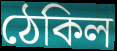
ঠেকিল